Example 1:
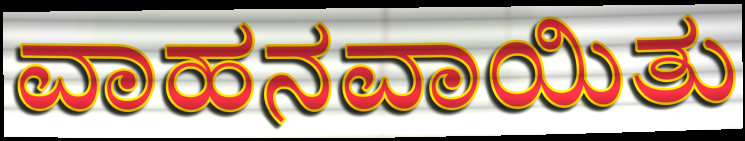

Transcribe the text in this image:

ವಾಹನವಾಯಿತು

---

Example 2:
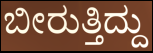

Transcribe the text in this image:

ಬೀರುತ್ತಿದ್ದು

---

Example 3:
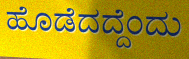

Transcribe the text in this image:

ಹೊಡೆದದ್ದೆಂದು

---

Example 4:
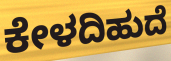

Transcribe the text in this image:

ಕೇಳದಿಹುದೆ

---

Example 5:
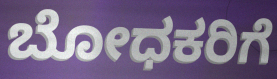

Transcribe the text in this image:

ಬೋಧಕರಿಗೆ